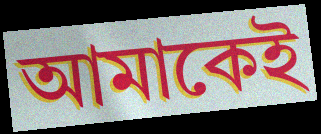
আমাকেই